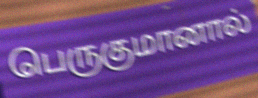
பெருகுமானால்